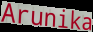
Arunika